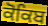
ਕੋਕਿਬ